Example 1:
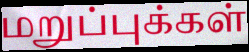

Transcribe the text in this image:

மறுப்புக்கள்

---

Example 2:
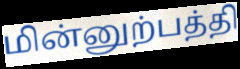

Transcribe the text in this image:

மின்னுற்பத்தி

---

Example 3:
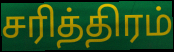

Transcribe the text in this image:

சரித்திரம்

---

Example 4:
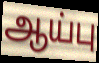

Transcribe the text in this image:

ஆய்பு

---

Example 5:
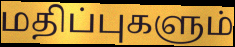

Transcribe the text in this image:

மதிப்புகளும்